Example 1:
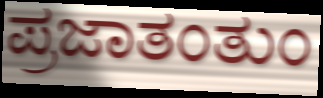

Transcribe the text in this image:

ಪ್ರಜಾತಂತುಂ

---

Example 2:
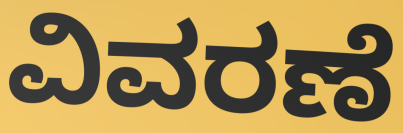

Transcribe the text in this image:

ವಿವರಣೆ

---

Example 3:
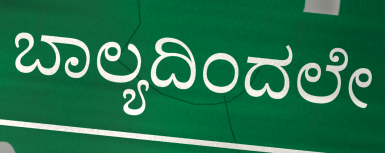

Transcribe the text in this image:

ಬಾಲ್ಯದಿಂದಲೇ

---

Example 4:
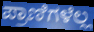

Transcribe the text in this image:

ಪ್ರಾಣಿಗಳೆಲ್ಲ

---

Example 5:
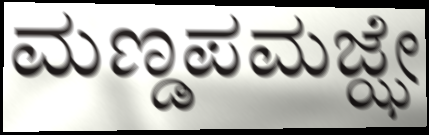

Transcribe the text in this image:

ಮಣ್ಡಪಮಜ್ಝೇ